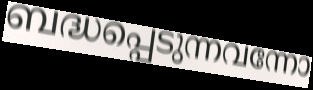
ബദ്ധപ്പെടുന്നവന്നോ